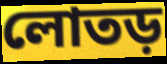
লোতড়